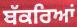
ਬੱਕਰਿਆਂ